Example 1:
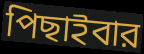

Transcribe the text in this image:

পিছাইবার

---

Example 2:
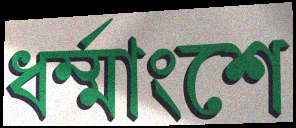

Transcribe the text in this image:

ধর্ম্মাংশে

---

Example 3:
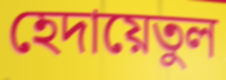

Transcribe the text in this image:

হেদায়েতুল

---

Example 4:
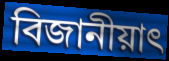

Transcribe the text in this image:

বিজানীয়াৎ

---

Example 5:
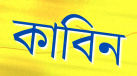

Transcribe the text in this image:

কাবিন